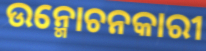
ଉନ୍ମୋଚନକାରୀ